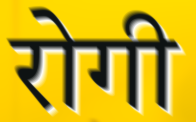
रोगी